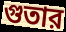
গুতার